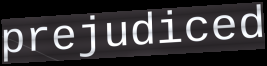
prejudiced